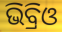
ଭିବ୍ରିଓ